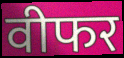
वीफर